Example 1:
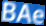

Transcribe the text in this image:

BAe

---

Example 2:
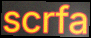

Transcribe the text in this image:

scrfa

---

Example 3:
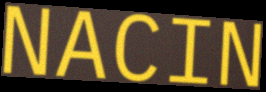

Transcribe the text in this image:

NACIN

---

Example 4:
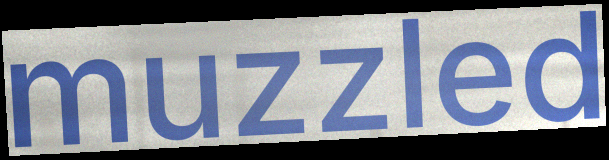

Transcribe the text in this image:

muzzled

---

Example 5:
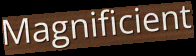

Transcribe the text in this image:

Magnificient